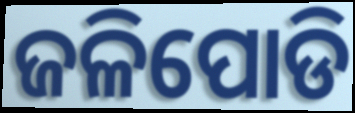
ଜଳିପୋଡି